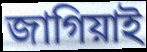
জাগিয়াই